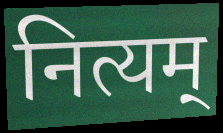
नित्यम्